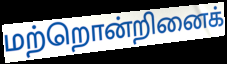
மற்றொன்றினைக்